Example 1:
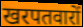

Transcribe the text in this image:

खरपतवारों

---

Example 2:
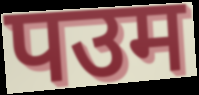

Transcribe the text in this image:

पउम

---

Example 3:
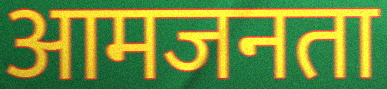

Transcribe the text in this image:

आमजनता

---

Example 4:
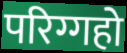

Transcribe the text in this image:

परिग्गहो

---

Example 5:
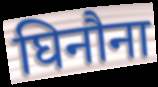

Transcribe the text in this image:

घिनौना